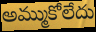
అమ్ముకోలేదు